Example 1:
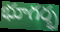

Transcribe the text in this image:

భూగర్భ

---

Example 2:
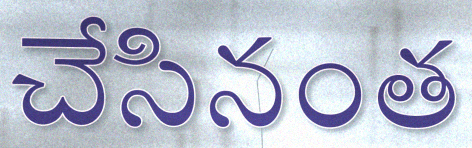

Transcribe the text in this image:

చేసినంత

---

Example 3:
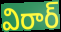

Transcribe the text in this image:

విరార్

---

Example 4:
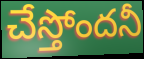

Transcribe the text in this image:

చేస్తోందనీ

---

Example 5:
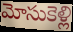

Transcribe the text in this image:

మోసుకెళ్లి